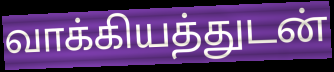
வாக்கியத்துடன்